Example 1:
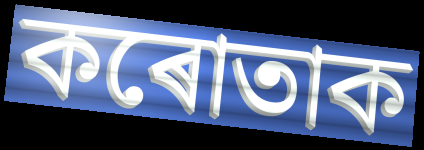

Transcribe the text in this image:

কৰোতাক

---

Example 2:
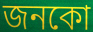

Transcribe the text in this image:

জনকো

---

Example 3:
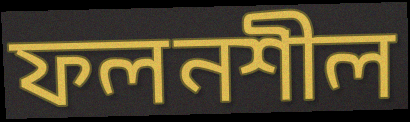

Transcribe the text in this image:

ফলনশীল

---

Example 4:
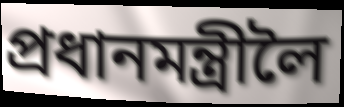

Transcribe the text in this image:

প্ৰধানমন্ত্ৰীলৈ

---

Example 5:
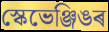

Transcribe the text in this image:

স্কেভেঞ্জিঙৰ